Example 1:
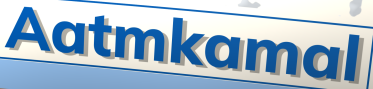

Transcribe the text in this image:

Aatmkamal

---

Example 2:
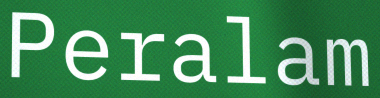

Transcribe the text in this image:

Peralam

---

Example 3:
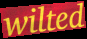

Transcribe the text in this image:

wilted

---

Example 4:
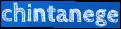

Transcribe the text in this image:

chintanege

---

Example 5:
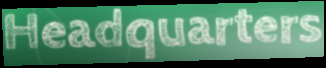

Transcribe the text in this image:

Headquarters